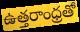
ఉత్తరాంధ్రతో